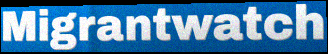
Migrantwatch